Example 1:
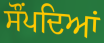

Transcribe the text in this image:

ਸੌਂਪਦਿਆਂ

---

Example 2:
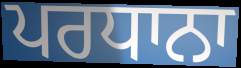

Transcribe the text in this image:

ਪਰਧਾਨਾ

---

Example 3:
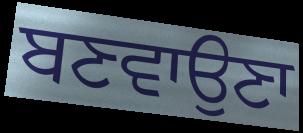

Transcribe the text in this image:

ਬਣਵਾਉਣਾ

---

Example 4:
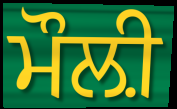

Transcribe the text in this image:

ਮੌਲ਼ੀ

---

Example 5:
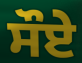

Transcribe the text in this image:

ਸੌਏ